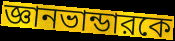
জ্ঞানভান্ডারকে